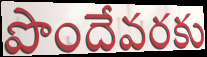
పొందేవరకు